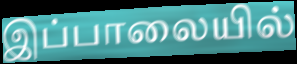
இப்பாலையில்